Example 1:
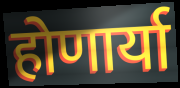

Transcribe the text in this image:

होणार्या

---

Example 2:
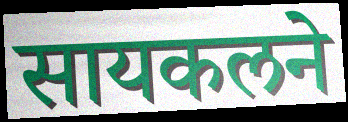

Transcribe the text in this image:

सायकलने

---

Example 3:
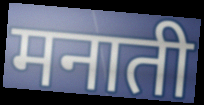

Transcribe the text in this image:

मनाती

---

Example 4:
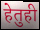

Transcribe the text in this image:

हेतुही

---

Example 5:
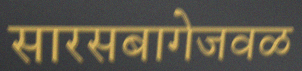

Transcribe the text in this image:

सारसबागेजवळ